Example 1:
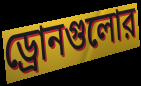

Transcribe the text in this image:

ড্রোনগুলোর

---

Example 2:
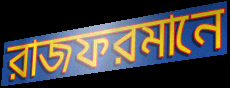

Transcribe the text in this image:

রাজফরমানে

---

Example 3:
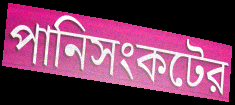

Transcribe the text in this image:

পানিসংকটের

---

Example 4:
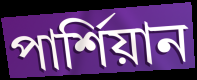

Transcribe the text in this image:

পার্শিয়ান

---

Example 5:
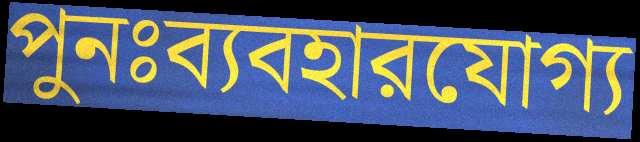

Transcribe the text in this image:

পুনঃব্যবহারযোগ্য